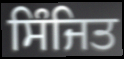
ਸਿੰਜਿਤ